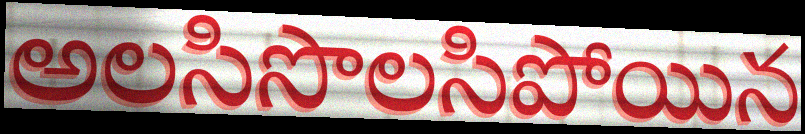
అలసిసొలసిపోయిన